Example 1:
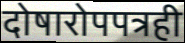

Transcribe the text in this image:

दोषारोपपत्रही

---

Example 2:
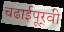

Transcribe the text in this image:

चढाईपूर्वी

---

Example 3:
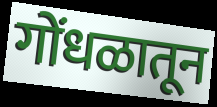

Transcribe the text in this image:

गोंधळातून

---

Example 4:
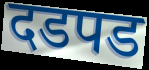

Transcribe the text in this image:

दडपड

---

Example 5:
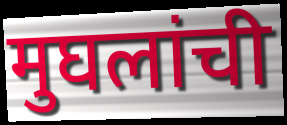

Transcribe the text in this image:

मुघलांची